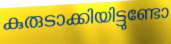
കുരുടാക്കിയിട്ടുണ്ടോ